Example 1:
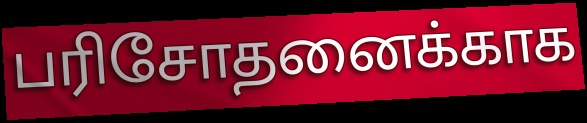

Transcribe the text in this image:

பரிசோதனைக்காக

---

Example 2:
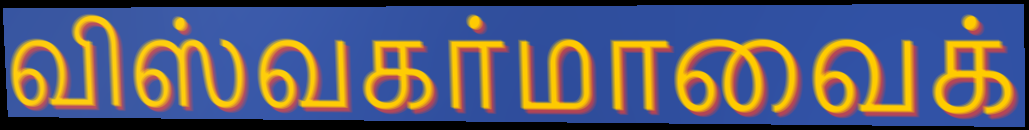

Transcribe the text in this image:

விஸ்வகர்மாவைக்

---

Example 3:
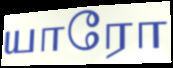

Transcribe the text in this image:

யாரோ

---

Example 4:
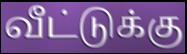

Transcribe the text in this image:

வீட்டுக்கு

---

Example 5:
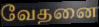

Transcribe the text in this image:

வேதனை